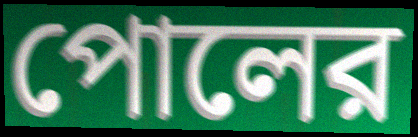
পোলের